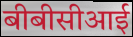
बीबीसीआई